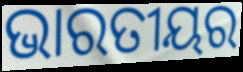
ଭାରତୀୟର